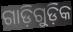
ଗାଡ଼ିଗୁଡ଼ିକ